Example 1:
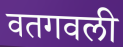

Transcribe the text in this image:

वतगवली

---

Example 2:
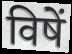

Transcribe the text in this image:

विषें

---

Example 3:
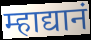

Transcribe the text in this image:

म्हाद्यानं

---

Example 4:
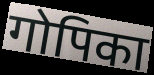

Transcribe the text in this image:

गोपिका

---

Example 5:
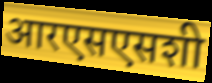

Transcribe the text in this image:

आरएसएसशी